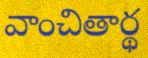
వాంచితార్థ